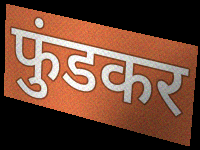
फुंडकर